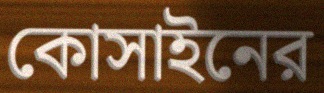
কোসাইনের